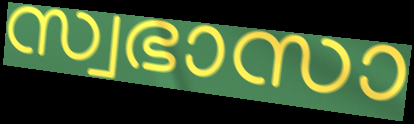
സ്വഭാസാ